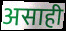
असाही